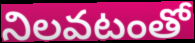
నిలవటంతో